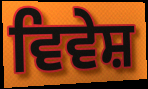
ਵਿਵੇਸ਼